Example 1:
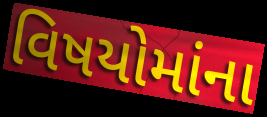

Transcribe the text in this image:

વિષયોમાંના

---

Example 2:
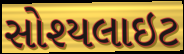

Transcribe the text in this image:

સોશ્યલાઇટ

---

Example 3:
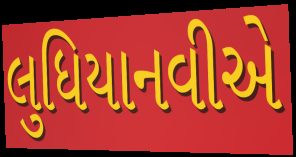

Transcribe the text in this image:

લુધિયાનવીએ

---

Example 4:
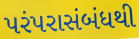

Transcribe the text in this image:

પરંપરાસંબંધથી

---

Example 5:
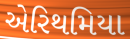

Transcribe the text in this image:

એરિથમિયા